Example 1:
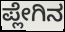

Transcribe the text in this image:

ಪ್ಲೇಗಿನ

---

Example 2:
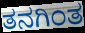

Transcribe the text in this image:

ತನಗಿಂತ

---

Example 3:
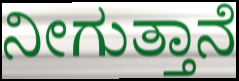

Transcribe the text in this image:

ನೀಗುತ್ತಾನೆ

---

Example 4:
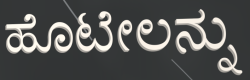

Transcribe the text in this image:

ಹೊಟೇಲನ್ನು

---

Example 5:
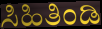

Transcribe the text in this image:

ಸಿಹಿತಿಂಡಿ